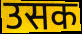
उसक